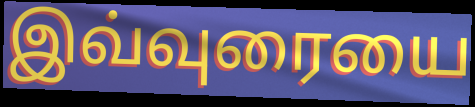
இவ்வுரையை